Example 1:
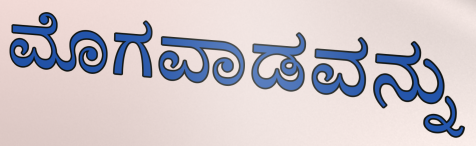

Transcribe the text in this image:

ಮೊಗವಾಡವನ್ನು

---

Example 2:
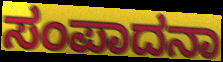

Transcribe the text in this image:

ಸಂಪಾದನಾ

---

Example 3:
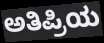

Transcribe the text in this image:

ಅತಿಪ್ರಿಯ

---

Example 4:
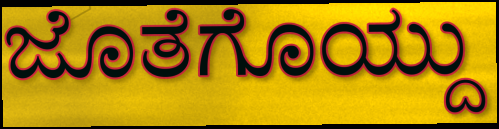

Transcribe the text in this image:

ಜೊತೆಗೊಯ್ದು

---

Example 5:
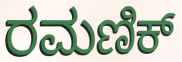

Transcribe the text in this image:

ರಮಣಿಕ್